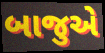
બાજુએ